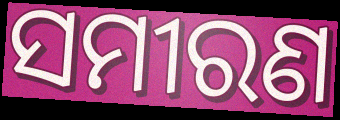
ସମୀରଣ